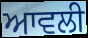
ਆਵਲੀ